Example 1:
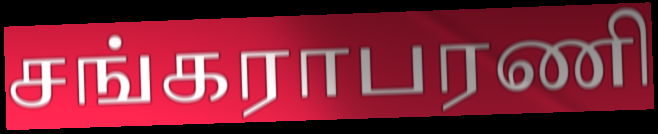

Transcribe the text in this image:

சங்கராபரணி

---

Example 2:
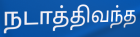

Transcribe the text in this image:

நடாத்திவந்த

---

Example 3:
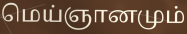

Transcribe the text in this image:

மெய்ஞானமும்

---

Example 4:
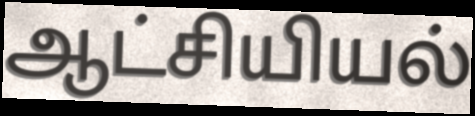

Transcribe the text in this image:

ஆட்சியியல்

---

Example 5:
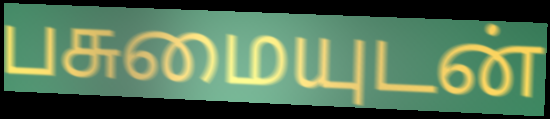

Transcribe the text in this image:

பசுமையுடன்